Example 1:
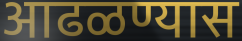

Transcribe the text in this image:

आढळण्यास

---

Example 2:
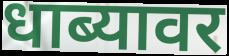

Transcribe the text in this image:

धाब्यावर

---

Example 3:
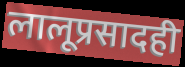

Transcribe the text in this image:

लालूप्रसादही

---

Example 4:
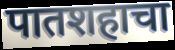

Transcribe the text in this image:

पातशहाचा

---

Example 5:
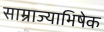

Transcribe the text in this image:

साम्राज्याभिषेक